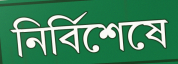
নির্বিশেষে